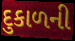
દુકાળની